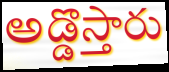
అడ్డొస్తారు